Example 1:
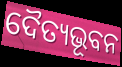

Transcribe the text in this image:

ଦୈତ୍ୟଭୂବନ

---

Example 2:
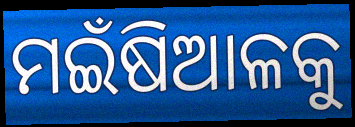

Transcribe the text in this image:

ମଇଁଷିଆଳକୁ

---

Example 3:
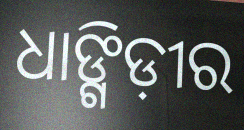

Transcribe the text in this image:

ଧାଙ୍ଗିଡ଼ୀର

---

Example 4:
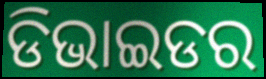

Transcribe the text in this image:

ଡିଭାଇଡର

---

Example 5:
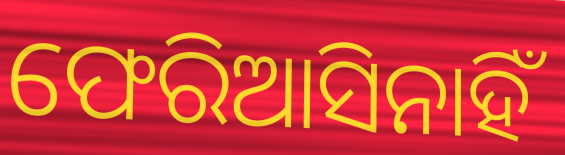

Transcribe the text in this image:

ଫେରିଆସିନାହିଁ